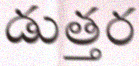
డుత్తర